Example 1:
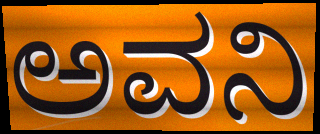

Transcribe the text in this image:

ಅವನಿ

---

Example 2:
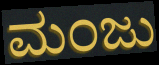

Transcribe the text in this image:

ಮಂಜು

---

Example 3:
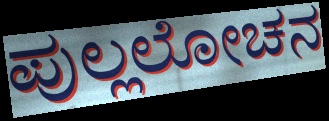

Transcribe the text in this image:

ಪುಲ್ಲಲೋಚನ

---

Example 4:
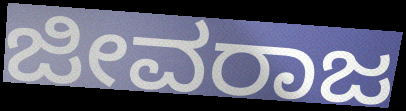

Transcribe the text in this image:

ಜೀವರಾಜ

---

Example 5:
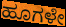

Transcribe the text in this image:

ಹೂಗಳೇ